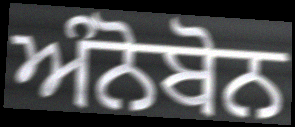
ਅੰਨੋਬੋਨ